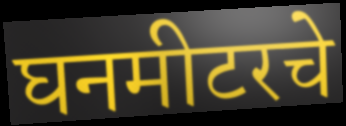
घनमीटरचे